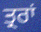
ਤ੍ਰਰਾਂ